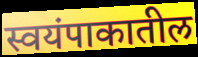
स्वयंपाकातील